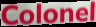
Colonel